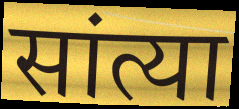
सांत्या